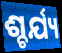
ଶ୍ଚର୍ଯ୍ୟ